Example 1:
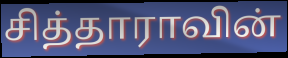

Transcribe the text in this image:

சித்தாராவின்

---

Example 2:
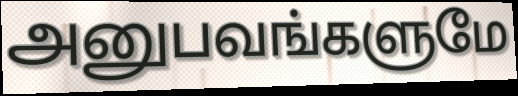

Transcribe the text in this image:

அனுபவங்களுமே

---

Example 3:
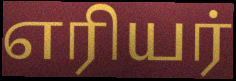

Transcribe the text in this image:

எரியர்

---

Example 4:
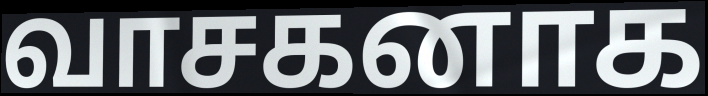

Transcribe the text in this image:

வாசகனாக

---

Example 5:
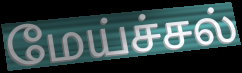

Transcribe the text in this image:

மேய்ச்சல்